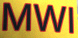
MWI